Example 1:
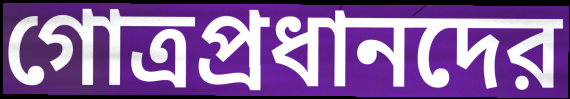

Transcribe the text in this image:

গোত্রপ্রধানদের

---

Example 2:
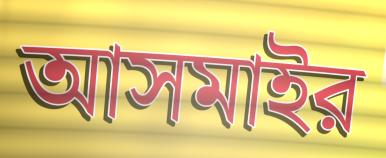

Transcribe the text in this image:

আসমাইর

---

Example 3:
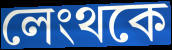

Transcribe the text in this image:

লেংথকে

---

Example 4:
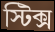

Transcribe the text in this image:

স্টিক্স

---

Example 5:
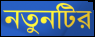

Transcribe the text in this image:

নতুনটির